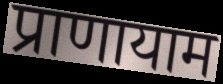
प्राणायाम